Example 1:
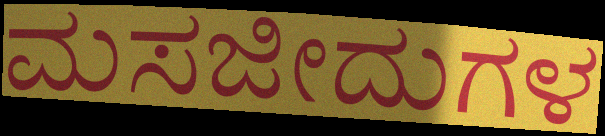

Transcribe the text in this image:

ಮಸಜೀದುಗಳ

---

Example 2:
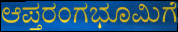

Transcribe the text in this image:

ಆಪ್ತರಂಗಭೂಮಿಗೆ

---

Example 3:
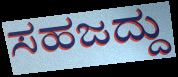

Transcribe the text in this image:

ಸಹಜದ್ದು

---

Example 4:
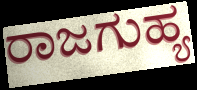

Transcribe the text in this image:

ರಾಜಗುಹ್ಯ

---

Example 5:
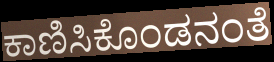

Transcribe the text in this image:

ಕಾಣಿಸಿಕೊಂಡನಂತೆ